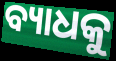
ବ୍ୟାଧକୁ